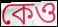
কেও